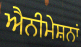
ਐਨੀਮੇਸ਼ਨਾਂ